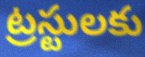
ట్రస్టులకు